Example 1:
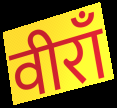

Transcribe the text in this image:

वीराँ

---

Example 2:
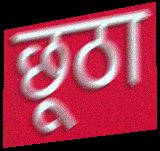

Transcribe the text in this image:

छूठा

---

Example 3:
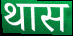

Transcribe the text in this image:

थास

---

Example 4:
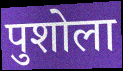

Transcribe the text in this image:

पुशोला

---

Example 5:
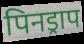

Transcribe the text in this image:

पिनड्राप